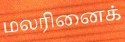
மலரினைக்